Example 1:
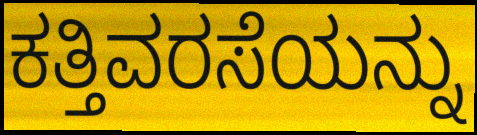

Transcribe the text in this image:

ಕತ್ತಿವರಸೆಯನ್ನು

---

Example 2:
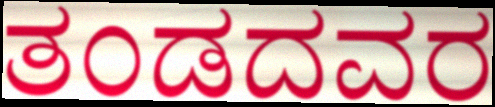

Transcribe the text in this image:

ತಂಡದವರ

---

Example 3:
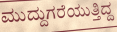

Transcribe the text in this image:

ಮುದ್ದುಗರೆಯುತ್ತಿದ್ದ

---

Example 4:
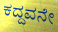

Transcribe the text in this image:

ಕದ್ದವನೇ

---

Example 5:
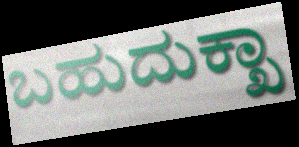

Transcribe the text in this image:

ಬಹುದುಕ್ಖಾ